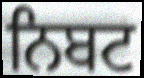
ਨਿਬਟ